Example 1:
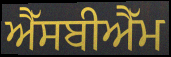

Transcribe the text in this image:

ਐੱਸਬੀਐੱਮ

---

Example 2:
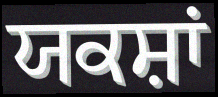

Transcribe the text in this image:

ਯਕਸ਼ਾਂ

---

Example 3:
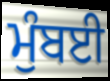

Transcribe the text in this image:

ਮੁੰਬਈ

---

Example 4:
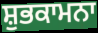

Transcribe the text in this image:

ਸ਼ੁਭਕਾਮਨਾ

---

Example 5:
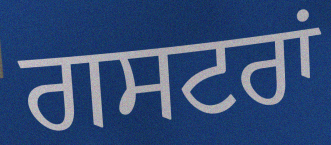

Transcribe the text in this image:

ਗਸਟਰਾਂ